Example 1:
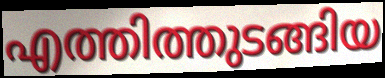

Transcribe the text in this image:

എത്തിത്തുടങ്ങിയ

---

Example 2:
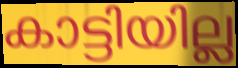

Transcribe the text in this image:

കാട്ടിയില്ല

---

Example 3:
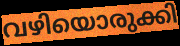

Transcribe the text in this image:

വഴിയൊരുക്കി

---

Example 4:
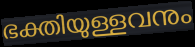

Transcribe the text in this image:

ഭക്തിയുള്ളവനും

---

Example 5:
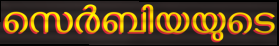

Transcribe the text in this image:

സെർബിയയുടെ